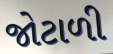
જોટાળી